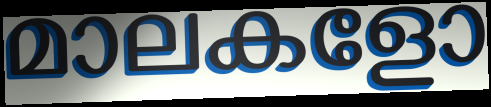
മാലകളോ